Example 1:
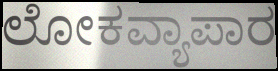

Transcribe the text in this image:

ಲೋಕವ್ಯಾಪಾರ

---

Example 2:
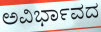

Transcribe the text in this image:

ಅವಿರ್ಭಾವದ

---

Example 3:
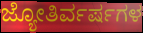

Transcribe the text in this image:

ಜ್ಯೋತಿರ್ವರ್ಷಗಳ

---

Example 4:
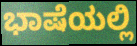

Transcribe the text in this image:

ಭಾಷೆಯಲ್ಲಿ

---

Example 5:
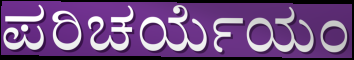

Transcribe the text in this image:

ಪರಿಚರ್ಯೆಯಂ